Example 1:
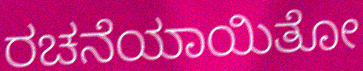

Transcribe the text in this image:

ರಚನೆಯಾಯಿತೋ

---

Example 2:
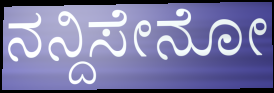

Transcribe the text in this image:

ನನ್ದಿಸೇನೋ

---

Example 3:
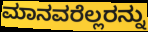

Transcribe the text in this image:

ಮಾನವರೆಲ್ಲರನ್ನು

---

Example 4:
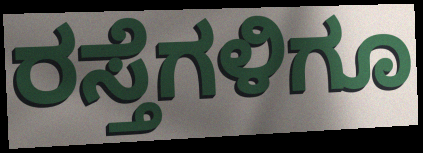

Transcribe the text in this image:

ರಸ್ತೆಗಳಿಗೂ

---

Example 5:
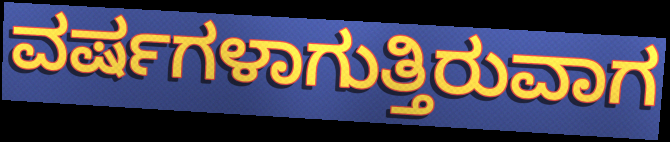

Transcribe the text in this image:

ವರ್ಷಗಳಾಗುತ್ತಿರುವಾಗ